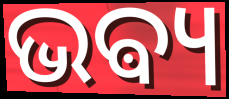
ଭଵ୍ୟ